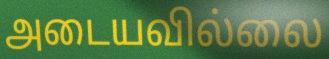
அடையவில்லை